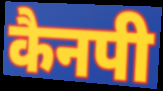
कैनपी